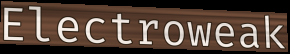
Electroweak